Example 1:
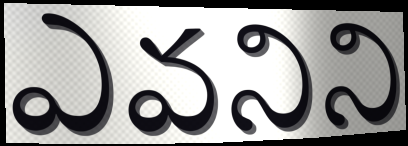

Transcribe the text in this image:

ఎవనిని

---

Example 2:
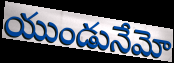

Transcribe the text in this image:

యుండునేమో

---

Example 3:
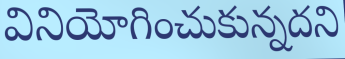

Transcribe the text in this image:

వినియోగించుకున్నదని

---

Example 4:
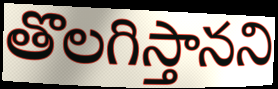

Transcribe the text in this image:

తొలగిస్తానని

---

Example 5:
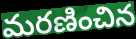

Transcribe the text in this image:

మరణించిన